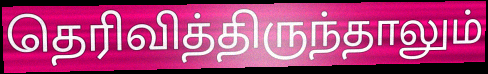
தெரிவித்திருந்தாலும்